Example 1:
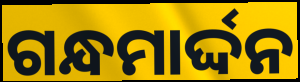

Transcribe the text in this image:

ଗନ୍ଧମାର୍ଦ୍ଦନ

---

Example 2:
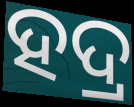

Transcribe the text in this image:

ହଦ୍ର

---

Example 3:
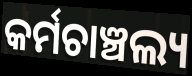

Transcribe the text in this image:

କର୍ମଚାଞ୍ଚଲ୍ୟ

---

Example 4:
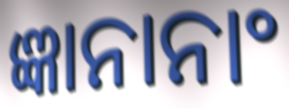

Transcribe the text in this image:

ଜ୍ଞାନାନାଂ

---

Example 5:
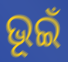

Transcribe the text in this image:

ଭୂଇଁ